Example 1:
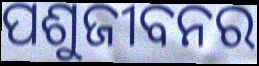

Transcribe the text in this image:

ପଶୁଜୀବନର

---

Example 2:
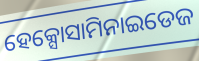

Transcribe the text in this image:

ହେକ୍ସୋସାମିନାଇଡେଜ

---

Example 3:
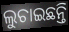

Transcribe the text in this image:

ଲୁଚାଇଛନ୍ତି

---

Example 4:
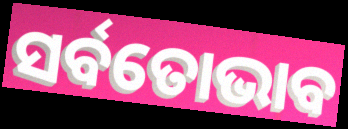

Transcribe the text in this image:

ସର୍ବତୋଭାବ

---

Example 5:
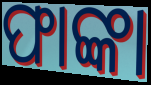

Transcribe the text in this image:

ଫାଙ୍କା